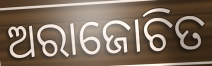
ଅରାଜୋଚିତ